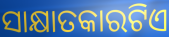
ସାକ୍ଷାତକାରଟିଏ